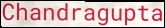
Chandragupta